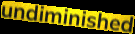
undiminished